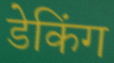
डेकिंग